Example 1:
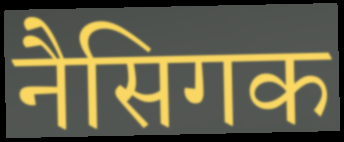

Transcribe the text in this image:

नैसिगक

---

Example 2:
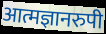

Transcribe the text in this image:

आत्मज्ञानरुपी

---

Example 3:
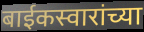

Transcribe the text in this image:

बाईकस्वारांच्या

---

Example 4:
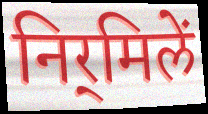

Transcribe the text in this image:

निर्मिलें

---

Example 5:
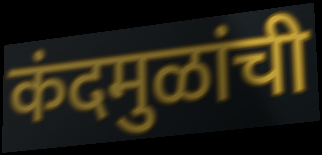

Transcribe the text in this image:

कंदमुळांची